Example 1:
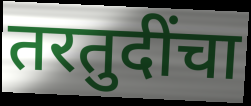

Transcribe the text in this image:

तरतुदींचा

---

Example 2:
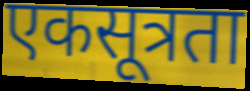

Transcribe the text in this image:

एकसूत्रता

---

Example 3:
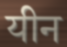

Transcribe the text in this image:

यीन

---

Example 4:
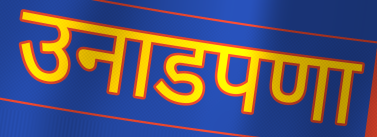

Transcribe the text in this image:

उनाडपणा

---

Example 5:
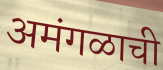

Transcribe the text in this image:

अमंगळाची